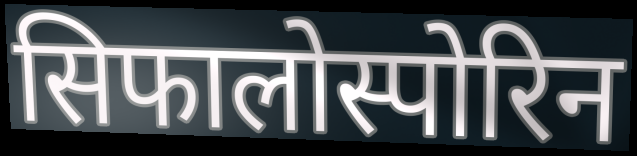
सिफालोस्पोरिन